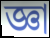
জ্ঞা